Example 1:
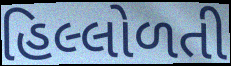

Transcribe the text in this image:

હિલ્લોળતી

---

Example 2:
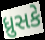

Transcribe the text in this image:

ધ્રુસકે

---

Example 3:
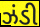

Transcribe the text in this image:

ઝંડી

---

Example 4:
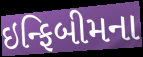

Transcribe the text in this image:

ઇન્ફિબીમના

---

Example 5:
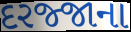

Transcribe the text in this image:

દરજ્જાના